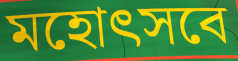
মহোৎসবে